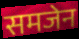
समजेन